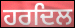
ਹਰਦਿਲ